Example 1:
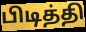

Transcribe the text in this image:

பிடித்தி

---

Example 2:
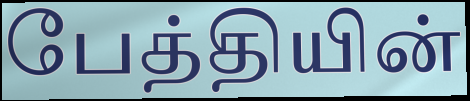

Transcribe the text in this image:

பேத்தியின்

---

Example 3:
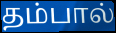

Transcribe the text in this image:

தம்பால்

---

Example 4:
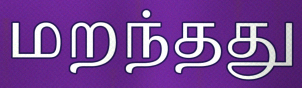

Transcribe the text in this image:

மறந்தது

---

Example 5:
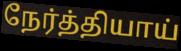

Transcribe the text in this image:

நேர்த்தியாய்